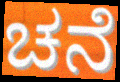
ಚನೆ